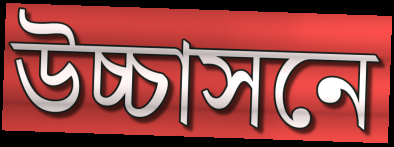
উচ্চাসনে